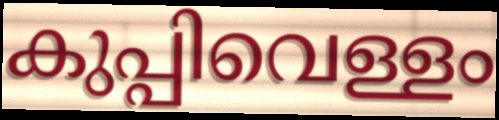
കുപ്പിവെള്ളം